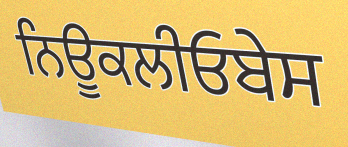
ਨਿਊਕਲੀਓਬੇਸ